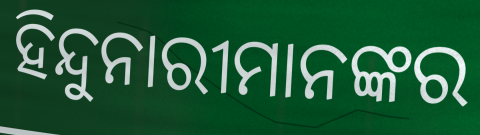
ହିନ୍ଦୁନାରୀମାନଙ୍କର